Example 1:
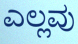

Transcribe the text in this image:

ಎಲ್ಲವು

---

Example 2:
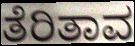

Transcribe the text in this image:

ತೆರಿತಾವ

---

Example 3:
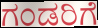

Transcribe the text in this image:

ಗಂಡರಿಗೆ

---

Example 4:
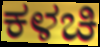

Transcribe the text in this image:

ಕಳಚಿ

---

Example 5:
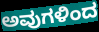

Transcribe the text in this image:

ಅವುಗಳಿಂದ